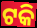
ଟକି